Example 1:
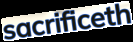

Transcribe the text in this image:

sacrificeth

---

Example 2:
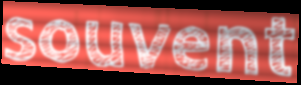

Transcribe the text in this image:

souvent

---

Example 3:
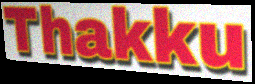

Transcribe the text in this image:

Thakku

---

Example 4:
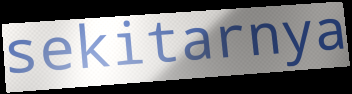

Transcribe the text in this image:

sekitarnya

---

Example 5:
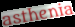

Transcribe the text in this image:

asthenia